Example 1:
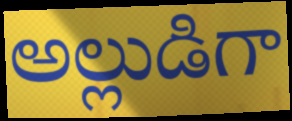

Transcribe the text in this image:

అల్లుడిగా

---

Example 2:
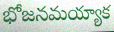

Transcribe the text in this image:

భోజనమయ్యాక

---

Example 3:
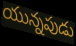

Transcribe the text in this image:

యున్నపుడు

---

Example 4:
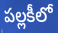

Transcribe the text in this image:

పల్లకీలో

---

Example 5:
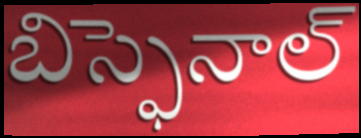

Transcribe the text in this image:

బిస్ఫెనాల్